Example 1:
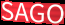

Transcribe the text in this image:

SAGO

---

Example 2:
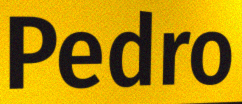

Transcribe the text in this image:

Pedro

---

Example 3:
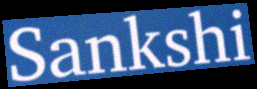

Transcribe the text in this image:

Sankshi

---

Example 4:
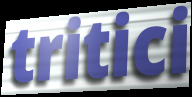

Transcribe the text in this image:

tritici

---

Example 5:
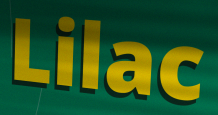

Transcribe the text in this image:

Lilac